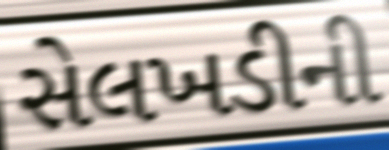
સેલખડીની